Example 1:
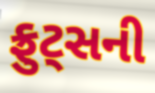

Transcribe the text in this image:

ફ્રુટ્સની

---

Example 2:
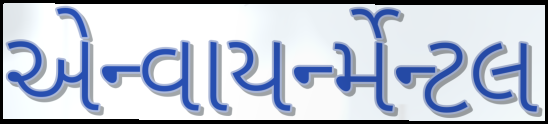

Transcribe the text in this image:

એન્વાયર્ન્મેન્ટલ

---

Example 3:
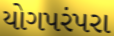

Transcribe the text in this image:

યોગપરંપરા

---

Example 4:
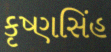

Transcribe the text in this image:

કૃષ્ણસિંહ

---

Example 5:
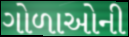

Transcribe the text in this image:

ગોળાઓની